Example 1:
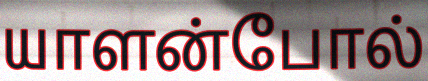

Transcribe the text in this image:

யாளன்போல்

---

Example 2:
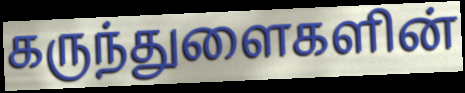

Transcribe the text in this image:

கருந்துளைகளின்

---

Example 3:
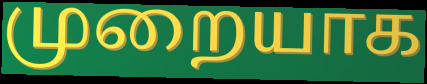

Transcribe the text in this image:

முறையாக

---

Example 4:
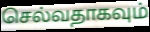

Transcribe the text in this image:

செல்வதாகவும்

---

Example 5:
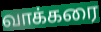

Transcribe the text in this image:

வாக்கரை